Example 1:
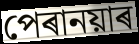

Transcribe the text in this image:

পেৰানয়াৰ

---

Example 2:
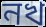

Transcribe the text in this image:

নখ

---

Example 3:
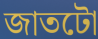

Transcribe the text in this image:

জাতটো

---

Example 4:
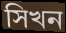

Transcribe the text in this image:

সিখন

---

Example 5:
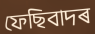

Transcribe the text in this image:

ফেছিবাদৰ